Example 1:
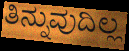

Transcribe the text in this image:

ತಿನ್ನುವುದಿಲ್ಲ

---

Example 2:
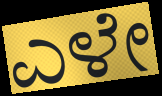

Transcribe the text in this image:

ಎಳೇ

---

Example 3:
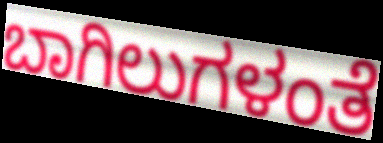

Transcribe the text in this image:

ಬಾಗಿಲುಗಳಂತೆ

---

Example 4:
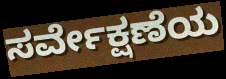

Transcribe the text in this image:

ಸರ್ವೇಕ್ಷಣೆಯ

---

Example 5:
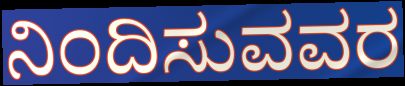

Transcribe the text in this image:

ನಿಂದಿಸುವವರ